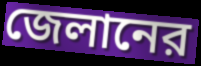
জেলানের